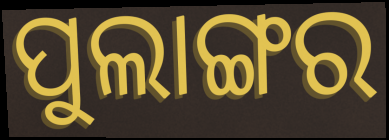
ପୁଲାଙ୍ଗର